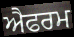
ਐਫਰਮ